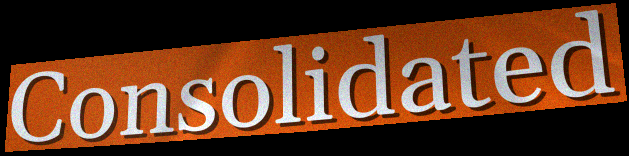
Consolidated